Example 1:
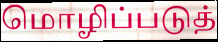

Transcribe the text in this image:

மொழிப்படுத்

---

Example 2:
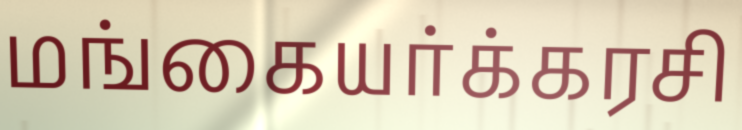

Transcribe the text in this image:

மங்கையர்க்கரசி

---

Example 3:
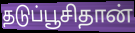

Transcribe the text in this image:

தடுப்பூசிதான்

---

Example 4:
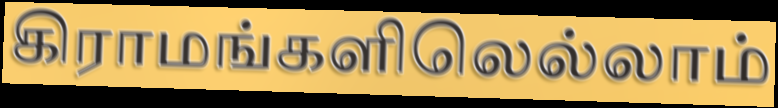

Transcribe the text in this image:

கிராமங்களிலெல்லாம்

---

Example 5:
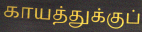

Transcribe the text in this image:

காயத்துக்குப்